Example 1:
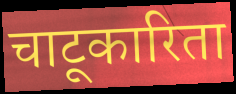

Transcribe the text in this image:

चाटूकारिता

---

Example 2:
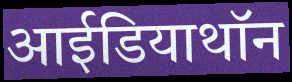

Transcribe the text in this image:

आईडियाथॉन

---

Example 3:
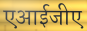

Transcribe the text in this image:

एआईजीए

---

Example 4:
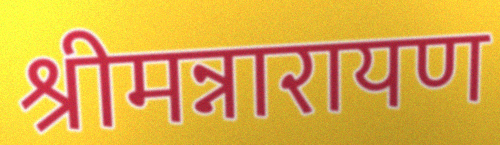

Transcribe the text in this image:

श्रीमन्नारायण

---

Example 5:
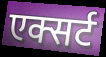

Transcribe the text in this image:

एक्सर्ट